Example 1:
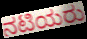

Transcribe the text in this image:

ನಟಿಯರು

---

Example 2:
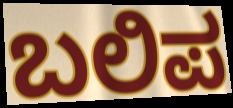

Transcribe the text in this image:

ಬಲಿಪ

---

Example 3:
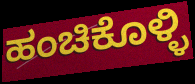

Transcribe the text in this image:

ಹಂಚಿಕೊಳ್ಳಿ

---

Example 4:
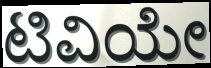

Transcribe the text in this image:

ಟಿವಿಯೇ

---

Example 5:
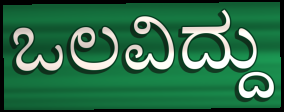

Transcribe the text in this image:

ಒಲವಿದ್ದು